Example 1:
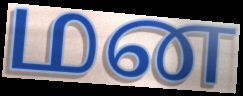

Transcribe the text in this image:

மன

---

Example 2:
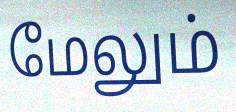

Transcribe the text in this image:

மேலும்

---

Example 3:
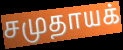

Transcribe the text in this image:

சமுதாயக்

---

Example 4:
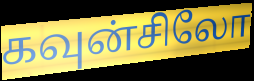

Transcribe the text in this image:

கவுன்சிலோ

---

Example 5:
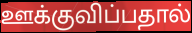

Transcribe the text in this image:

ஊக்குவிப்பதால்